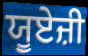
ਯੂਏਜ਼ੀ